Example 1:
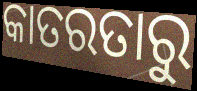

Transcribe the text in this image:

କାତରତାରୁ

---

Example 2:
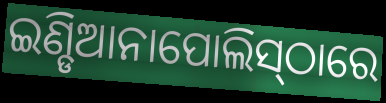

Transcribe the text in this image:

ଇଣ୍ଡିଆନାପୋଲିସ୍‍ଠାରେ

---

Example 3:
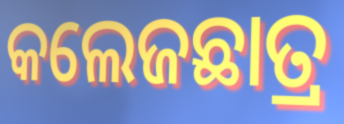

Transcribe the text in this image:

କଲେଜଛାତ୍ର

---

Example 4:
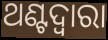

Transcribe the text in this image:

ଥଣ୍ଟଦ୍ୱାରା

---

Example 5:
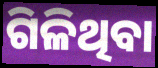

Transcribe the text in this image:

ଗିଳିଥିବା